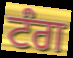
ਟੰਗ